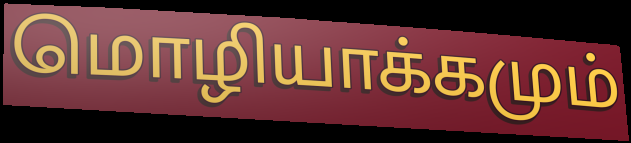
மொழியாக்கமும்